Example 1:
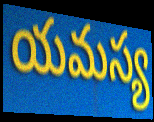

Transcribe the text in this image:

యమస్య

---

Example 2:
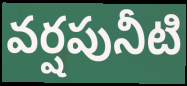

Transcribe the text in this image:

వర్షపునీటి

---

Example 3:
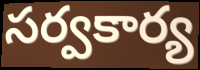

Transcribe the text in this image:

సర్వకార్య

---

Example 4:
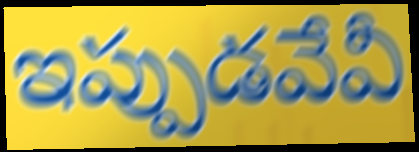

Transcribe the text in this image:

ఇప్పుడవేవీ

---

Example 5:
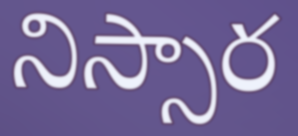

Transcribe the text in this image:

నిస్సార